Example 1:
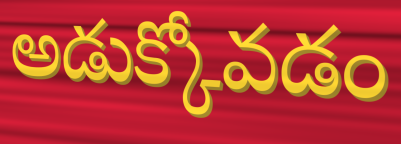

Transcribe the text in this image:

అడుక్కోవడం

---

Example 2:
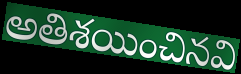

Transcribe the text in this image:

అతిశయించినవి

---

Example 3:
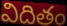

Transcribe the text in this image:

విదితం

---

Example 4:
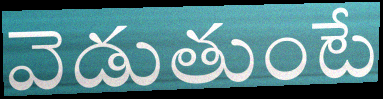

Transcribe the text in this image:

వెడుతుంటే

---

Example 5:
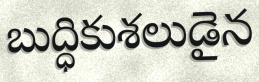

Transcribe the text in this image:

బుద్ధికుశలుడైన